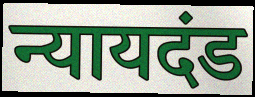
न्यायदंड